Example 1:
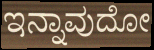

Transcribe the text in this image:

ಇನ್ನಾವುದೋ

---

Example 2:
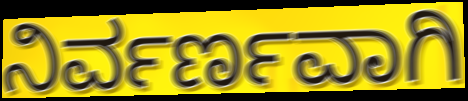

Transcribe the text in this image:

ನಿರ್ವರ್ಣವಾಗಿ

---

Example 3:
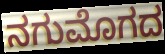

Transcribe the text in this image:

ನಗುಮೊಗದ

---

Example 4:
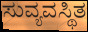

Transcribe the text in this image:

ಸುವ್ಯವಸ್ಥಿತ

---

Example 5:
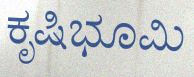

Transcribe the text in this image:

ಕೃಷಿಭೂಮಿ